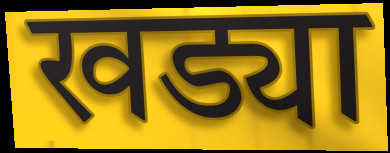
खड्या